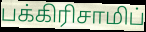
பக்கிரிசாமிப்